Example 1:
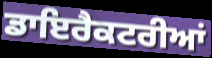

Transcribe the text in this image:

ਡਾਇਰੈਕਟਰੀਆਂ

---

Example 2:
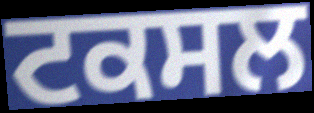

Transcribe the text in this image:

ਟਕਸਲ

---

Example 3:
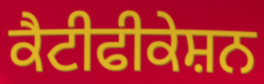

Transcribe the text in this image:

ਕੈਟੀਫੀਕੇਸ਼ਨ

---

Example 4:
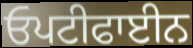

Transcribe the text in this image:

ਓਪਟੀਫਾਈਨ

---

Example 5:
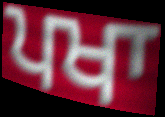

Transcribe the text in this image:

ਪਖਾ